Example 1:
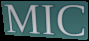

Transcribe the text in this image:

MIC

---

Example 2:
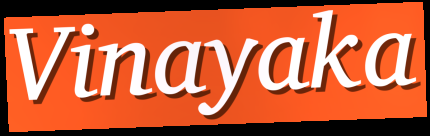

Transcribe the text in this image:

Vinayaka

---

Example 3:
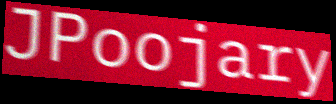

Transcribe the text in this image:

JPoojary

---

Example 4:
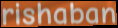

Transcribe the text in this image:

rishaban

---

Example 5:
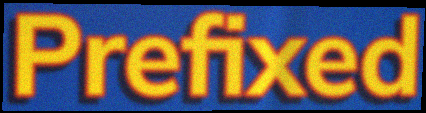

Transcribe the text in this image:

Prefixed